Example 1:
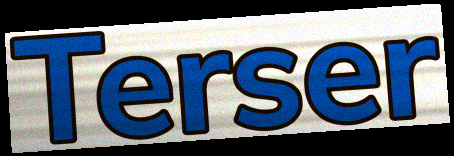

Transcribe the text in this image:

Terser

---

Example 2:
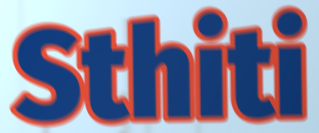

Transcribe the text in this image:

Sthiti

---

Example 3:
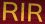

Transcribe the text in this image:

RIR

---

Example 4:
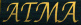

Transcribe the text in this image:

ATMA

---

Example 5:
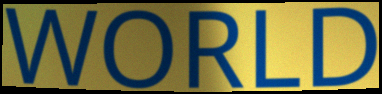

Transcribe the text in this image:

WORLD